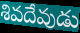
శివదేవుడు